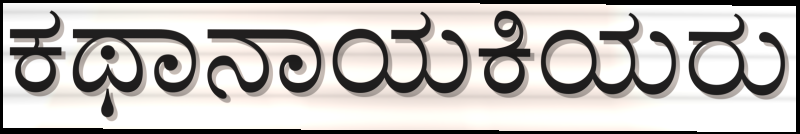
ಕಥಾನಾಯಕಿಯರು